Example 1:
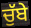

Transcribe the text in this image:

ਚੁੱਬੇ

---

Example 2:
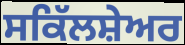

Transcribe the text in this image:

ਸਕਿੱਲਸ਼ੇਅਰ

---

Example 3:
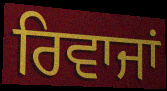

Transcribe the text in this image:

ਰਿਵਾਜਾਂ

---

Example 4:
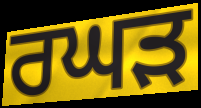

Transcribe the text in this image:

ਰਘੜ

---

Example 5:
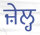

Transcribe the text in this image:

ਜ਼ੇਲ੍ਹ